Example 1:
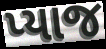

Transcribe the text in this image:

પ્યાજ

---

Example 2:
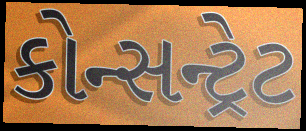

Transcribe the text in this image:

કોન્સન્ટ્રેટ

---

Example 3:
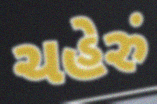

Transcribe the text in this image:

ચહેરું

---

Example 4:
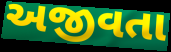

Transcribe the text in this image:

અજીવતા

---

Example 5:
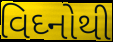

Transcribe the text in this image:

વિઘ્નોથી